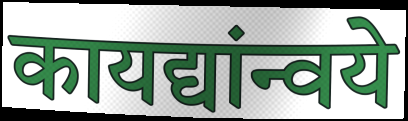
कायद्यांन्वये